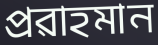
প্ৰৱাহমান